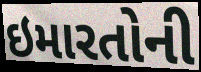
ઇમારતોની